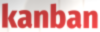
kanban